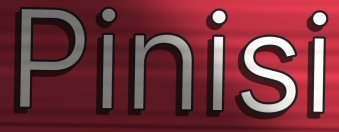
Pinisi